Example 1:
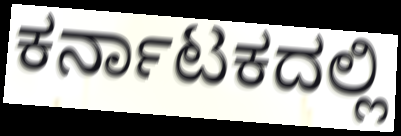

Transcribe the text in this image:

ಕರ್ನಾಟಕದಲ್ಲಿ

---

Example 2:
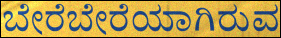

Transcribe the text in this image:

ಬೇರೆಬೇರೆಯಾಗಿರುವ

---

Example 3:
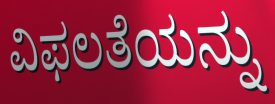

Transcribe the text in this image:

ವಿಫಲತೆಯನ್ನು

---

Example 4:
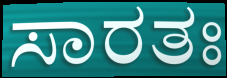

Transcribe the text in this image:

ಸಾರತಃ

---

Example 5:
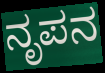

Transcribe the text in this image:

ನೃಪನ